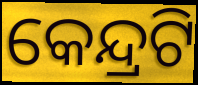
କେନ୍ଦ୍ରଟି